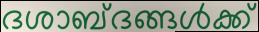
ദശാബ്ദങ്ങൾക്ക്